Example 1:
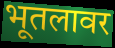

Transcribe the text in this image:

भूतलावर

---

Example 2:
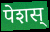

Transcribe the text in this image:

पेशस्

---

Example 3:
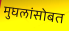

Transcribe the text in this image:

मुघलांसोबत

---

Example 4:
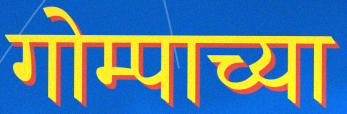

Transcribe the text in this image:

गोम्पाच्या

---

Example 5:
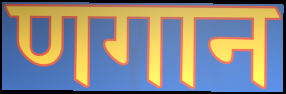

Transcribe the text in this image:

णगान